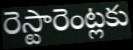
రెస్టారెంట్లకు